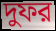
দুফর